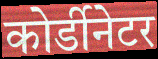
कोर्डीनेटर